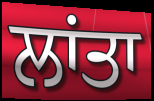
ਲਾਂਤਾ